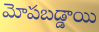
మోపబడ్డాయి